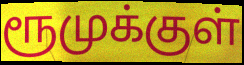
ரூமுக்குள்